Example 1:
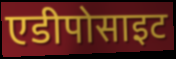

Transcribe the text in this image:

एडीपोसाइट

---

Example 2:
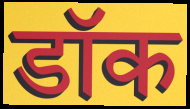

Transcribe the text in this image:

डॉक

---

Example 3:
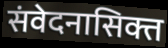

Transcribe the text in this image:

संवेदनासिक्त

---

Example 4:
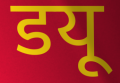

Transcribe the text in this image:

डयू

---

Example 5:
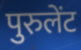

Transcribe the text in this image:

पुरुलेंट